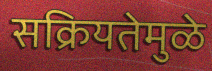
सक्रियतेमुळे